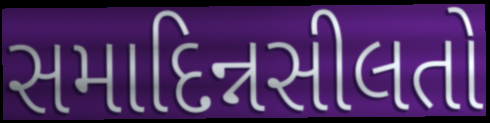
સમાદિન્નસીલતો